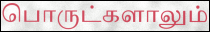
பொருட்களாலும்